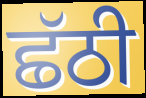
ਛੱਠੀ